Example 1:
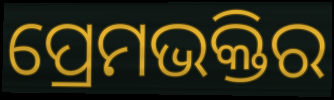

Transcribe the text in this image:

ପ୍ରେମଭକ୍ତିର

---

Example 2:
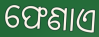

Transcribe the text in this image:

ଫେଣାଏ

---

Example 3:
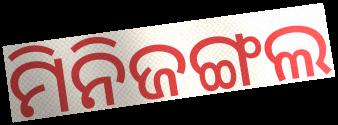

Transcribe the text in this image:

ମିନିଜଙ୍ଗଲ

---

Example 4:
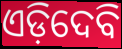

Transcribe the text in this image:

ଏଡ଼ିଦେବି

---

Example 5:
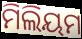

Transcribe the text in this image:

ମିଲିୟମ